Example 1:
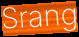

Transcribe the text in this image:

Srang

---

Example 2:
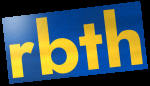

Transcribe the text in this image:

rbth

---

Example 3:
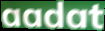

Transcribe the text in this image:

aadat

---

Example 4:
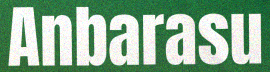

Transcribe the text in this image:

Anbarasu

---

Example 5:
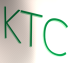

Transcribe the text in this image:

KTC